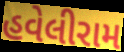
હવેલીરામ